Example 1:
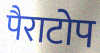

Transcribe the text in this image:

पैराटोप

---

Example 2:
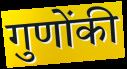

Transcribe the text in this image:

गुणोंकी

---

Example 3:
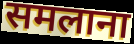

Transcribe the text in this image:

समलाना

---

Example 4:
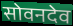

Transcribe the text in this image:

सोवनदेव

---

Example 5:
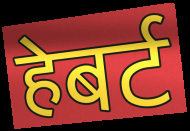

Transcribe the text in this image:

हेबर्ट